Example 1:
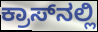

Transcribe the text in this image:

ಕ್ರಾಸ್‌ನಲ್ಲಿ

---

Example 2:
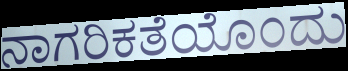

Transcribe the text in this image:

ನಾಗರಿಕತೆಯೊಂದು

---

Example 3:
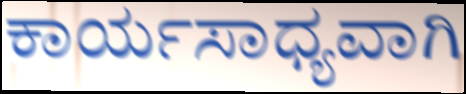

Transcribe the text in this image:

ಕಾರ್ಯಸಾಧ್ಯವಾಗಿ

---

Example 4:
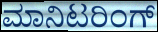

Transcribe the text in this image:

ಮಾನಿಟರಿಂಗ್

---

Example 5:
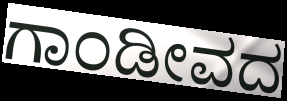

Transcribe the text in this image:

ಗಾಂಡೀವದ